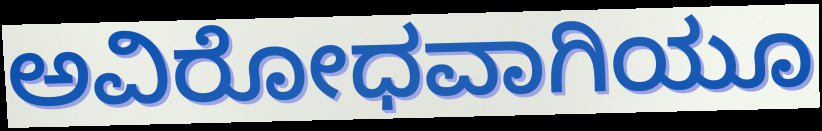
ಅವಿರೋಧವಾಗಿಯೂ